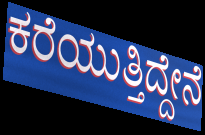
ಕರೆಯುತ್ತಿದ್ದೇನೆ